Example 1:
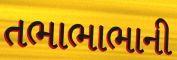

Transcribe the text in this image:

તભાભાભાની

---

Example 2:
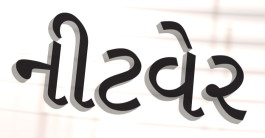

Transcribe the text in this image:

નીટવેર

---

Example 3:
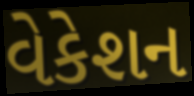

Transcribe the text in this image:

વેકેશન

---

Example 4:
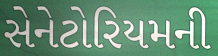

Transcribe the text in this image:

સેનેટોરિયમની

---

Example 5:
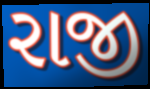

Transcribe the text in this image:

રાજી